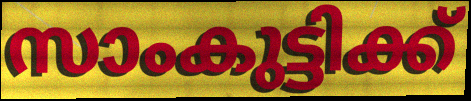
സാംകുട്ടിക്ക്